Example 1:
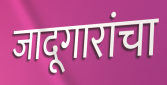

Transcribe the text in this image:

जादूगारांचा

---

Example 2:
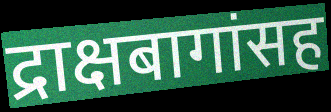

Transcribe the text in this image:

द्राक्षबागांसह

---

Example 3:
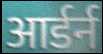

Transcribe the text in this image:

आर्डर्न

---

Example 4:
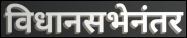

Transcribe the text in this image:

विधानसभेनंतर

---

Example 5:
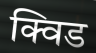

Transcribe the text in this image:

क्विड